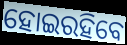
ହୋଇରହିବେ